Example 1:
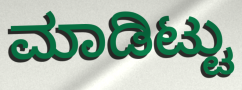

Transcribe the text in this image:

ಮಾಡಿಟ್ಟು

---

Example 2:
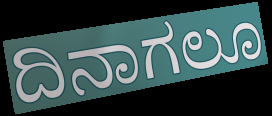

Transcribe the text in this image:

ದಿನಾಗಲೂ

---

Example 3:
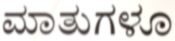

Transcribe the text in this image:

ಮಾತುಗಳೂ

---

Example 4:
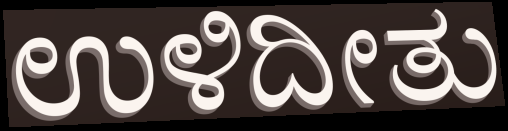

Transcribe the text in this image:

ಉಳಿದೀತು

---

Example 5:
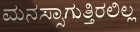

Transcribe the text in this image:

ಮನಸ್ಸಾಗುತ್ತಿರಲಿಲ್ಲ